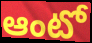
ఆంటో